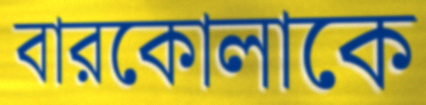
বারকোলাকে